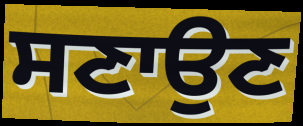
ਸਣਾਉਣ